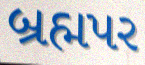
બ્રહ્મપર